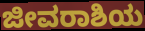
ಜೀವರಾಶಿಯ